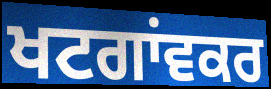
ਖਟਗਾਂਵਕਰ